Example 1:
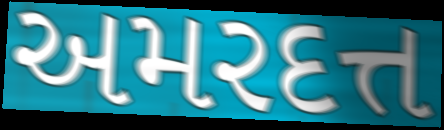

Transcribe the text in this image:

અમરદત્ત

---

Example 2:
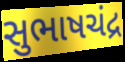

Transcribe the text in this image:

સુભાષચંદ્ર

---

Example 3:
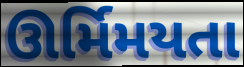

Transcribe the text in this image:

ઊર્મિમયતા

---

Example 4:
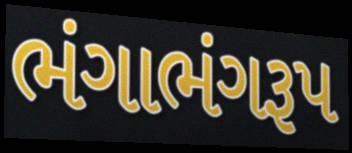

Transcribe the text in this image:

ભંગાભંગરૂપ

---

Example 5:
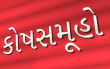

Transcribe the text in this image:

કોષસમૂહો